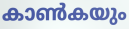
കാൺകയും